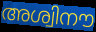
അശ്വിനൗ